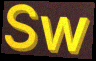
Sw